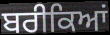
ਬਰੀਕਿਆਂ